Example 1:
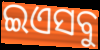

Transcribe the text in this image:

ଇଏସବୁ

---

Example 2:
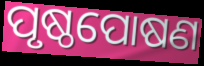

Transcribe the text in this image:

ପୃଷ୍ଠପୋଷଣ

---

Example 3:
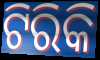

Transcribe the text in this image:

ଟିରିକି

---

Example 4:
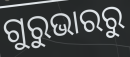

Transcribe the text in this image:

ଗୁରୁଭାରରୁ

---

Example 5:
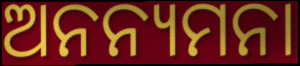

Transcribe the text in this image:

ଅନନ୍ୟମନା